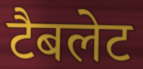
टैबलेट